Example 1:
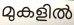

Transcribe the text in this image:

മുകളിൽ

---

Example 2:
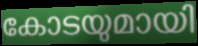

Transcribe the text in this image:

കോടയുമായി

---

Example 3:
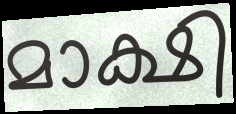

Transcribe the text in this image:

മാക്ഷി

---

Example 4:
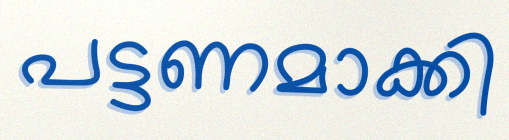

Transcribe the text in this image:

പട്ടണമാക്കി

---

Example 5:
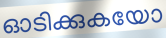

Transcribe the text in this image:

ഓടിക്കുകയോ